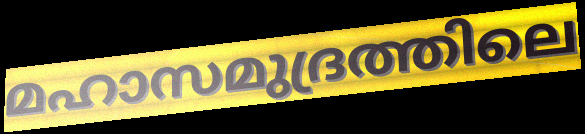
മഹാസമുദ്രത്തിലെ